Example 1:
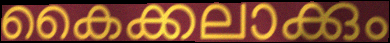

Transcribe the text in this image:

കൈക്കലാക്കും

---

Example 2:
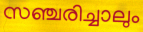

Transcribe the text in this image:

സഞ്ചരിച്ചാലും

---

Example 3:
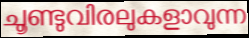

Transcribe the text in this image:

ചൂണ്ടുവിരലുകളാവുന്ന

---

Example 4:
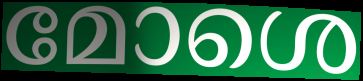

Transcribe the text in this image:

മോശെ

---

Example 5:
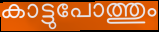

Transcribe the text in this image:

കാട്ടുപോത്തും